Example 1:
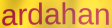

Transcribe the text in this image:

ardahan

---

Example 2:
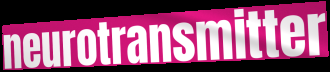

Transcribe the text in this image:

neurotransmitter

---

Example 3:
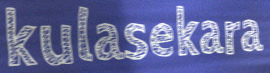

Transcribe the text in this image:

kulasekara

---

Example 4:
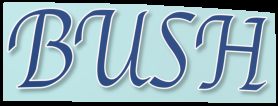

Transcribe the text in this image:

BUSH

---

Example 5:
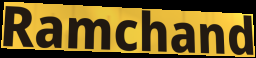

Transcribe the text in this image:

Ramchand